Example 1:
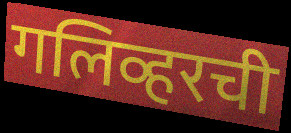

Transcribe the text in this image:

गलिव्हरची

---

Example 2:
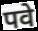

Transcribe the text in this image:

पवे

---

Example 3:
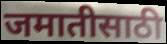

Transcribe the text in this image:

जमातीसाठी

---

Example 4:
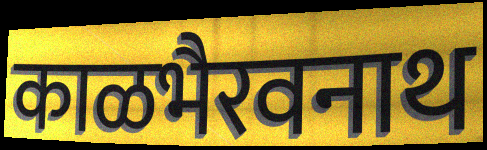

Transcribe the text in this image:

काळभैरवनाथ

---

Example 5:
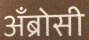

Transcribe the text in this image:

अँब्रोसी